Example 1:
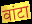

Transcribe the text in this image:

वांटा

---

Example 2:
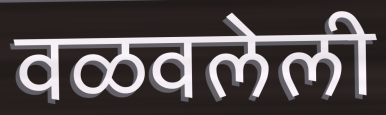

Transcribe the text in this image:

वळवलेली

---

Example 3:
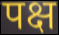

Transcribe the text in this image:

पक्ष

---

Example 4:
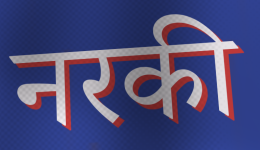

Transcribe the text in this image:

नरकी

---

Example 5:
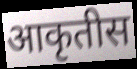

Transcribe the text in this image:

आकृतीस